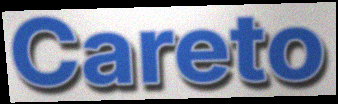
Careto